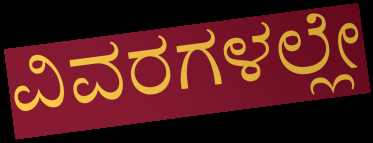
ವಿವರಗಳಲ್ಲೇ